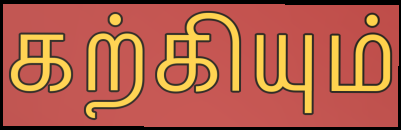
கற்கியும்